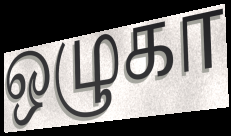
ஒழுகா